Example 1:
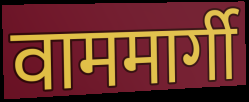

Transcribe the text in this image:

वाममार्गी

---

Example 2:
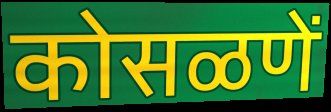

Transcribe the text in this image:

कोसळणें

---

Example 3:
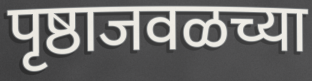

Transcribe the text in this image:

पृष्ठाजवळच्या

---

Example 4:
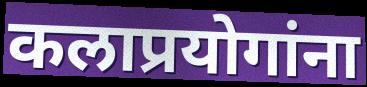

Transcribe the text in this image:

कलाप्रयोगांना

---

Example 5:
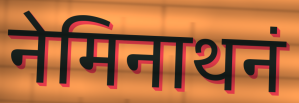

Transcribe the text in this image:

नेमिनाथनं